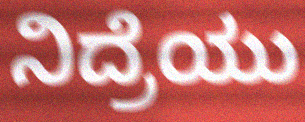
ನಿದ್ರೆಯು